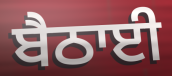
ਬੈਠਾਈ